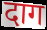
दाग